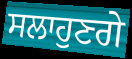
ਸਲਾਹੁਣਗੇ